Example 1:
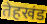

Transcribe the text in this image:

तेहखंड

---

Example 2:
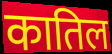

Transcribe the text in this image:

कातिल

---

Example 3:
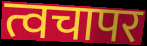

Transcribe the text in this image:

त्वचापर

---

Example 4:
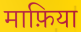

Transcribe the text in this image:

माफ़िया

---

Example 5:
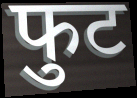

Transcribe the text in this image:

फुट